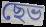
ছেভ